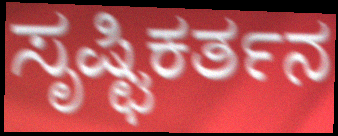
ಸೃಷ್ಟಿಕರ್ತನ